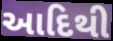
આદિથી